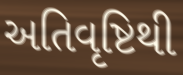
અતિવૃષ્ટિથી